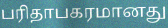
பரிதாபகரமானது